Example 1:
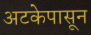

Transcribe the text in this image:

अटकेपासून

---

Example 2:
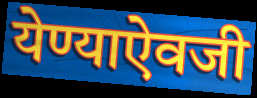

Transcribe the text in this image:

येण्याऐवजी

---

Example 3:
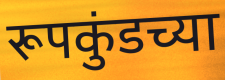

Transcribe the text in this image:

रूपकुंडच्या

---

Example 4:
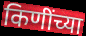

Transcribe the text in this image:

किणींच्या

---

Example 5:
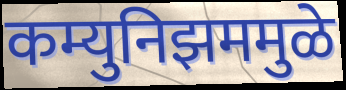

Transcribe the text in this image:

कम्युनिझममुळे